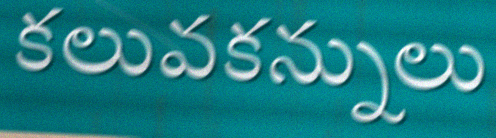
కలువకన్నులు